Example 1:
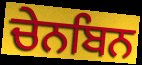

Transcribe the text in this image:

ਚੇਨਬਿਨ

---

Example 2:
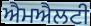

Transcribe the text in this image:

ਐਮਐਲਟੀ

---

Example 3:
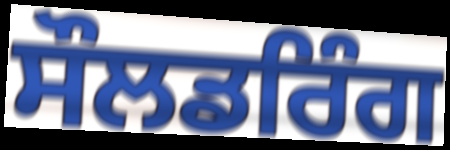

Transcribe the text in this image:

ਸੌਲਡਰਿੰਗ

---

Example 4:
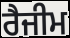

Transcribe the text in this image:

ਰੈਜੀਮ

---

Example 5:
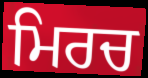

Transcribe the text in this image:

ਮਿਰਚ